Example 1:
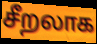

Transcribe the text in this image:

சீறலாக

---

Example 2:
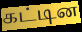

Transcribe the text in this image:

கட்டின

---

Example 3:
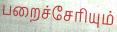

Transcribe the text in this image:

பறைச்சேரியும்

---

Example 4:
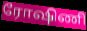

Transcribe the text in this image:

ரோஷிணி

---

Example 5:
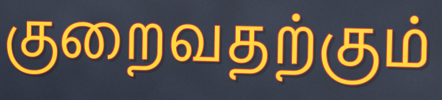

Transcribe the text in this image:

குறைவதற்கும்